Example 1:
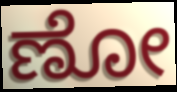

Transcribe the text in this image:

ಣೋ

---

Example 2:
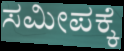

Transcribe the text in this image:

ಸಮೀಪಕ್ಕೆ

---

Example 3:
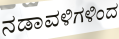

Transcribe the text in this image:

ನಡಾವಳಿಗಳಿಂದ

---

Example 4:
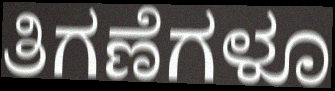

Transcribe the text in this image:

ತಿಗಣೆಗಳೂ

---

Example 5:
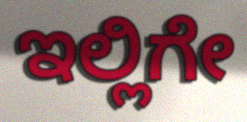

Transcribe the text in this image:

ಇಲ್ಲಿಗೇ